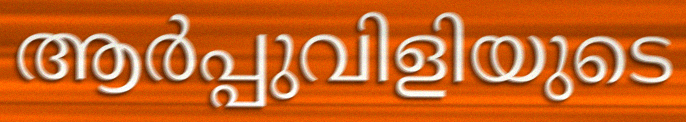
ആർപ്പുവിളിയുടെ